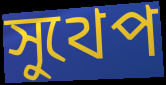
সুথেপ